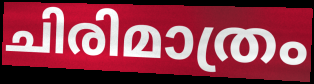
ചിരിമാത്രം